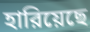
হারিয়েছে